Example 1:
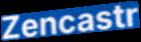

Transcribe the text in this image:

Zencastr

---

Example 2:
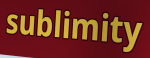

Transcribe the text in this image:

sublimity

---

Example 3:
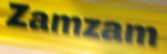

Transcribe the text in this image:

Zamzam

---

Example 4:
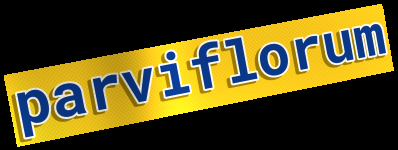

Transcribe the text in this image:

parviflorum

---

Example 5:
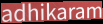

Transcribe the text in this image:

adhikaram